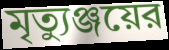
মৃত্যুঞ্জয়ের